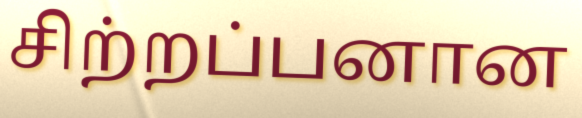
சிற்றப்பனான